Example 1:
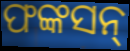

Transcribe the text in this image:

ଫଙ୍କସନ୍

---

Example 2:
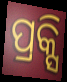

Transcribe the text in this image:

ପ୍ରକ୍ସି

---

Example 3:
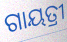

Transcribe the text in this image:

ଗାୟତ୍ରୀ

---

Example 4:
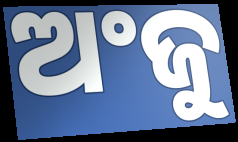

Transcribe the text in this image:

ଅଂଜୁ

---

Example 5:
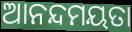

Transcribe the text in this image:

ଆନନ୍ଦମୟତା